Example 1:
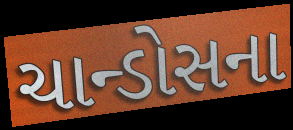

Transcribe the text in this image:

ચાન્ડોસના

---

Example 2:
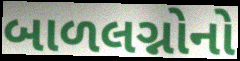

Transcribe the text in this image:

બાળલગ્નોનો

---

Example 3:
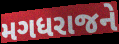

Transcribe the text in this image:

મગધરાજને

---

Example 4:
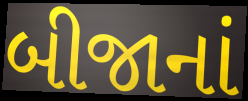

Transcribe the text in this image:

બીજાનાં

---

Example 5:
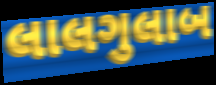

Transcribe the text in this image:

લાલગુલાબ